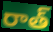
రాత్